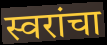
स्वरांचा